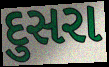
દુસરા